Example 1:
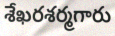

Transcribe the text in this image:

శేఖరశర్మగారు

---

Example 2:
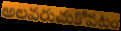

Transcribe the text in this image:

అలవరుచుకోవటం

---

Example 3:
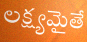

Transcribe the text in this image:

లక్ష్యమైతే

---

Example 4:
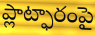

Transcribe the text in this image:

ప్లాట్ఫారంపై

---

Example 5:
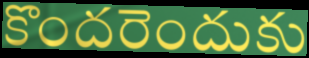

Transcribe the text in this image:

కొందరెందుకు